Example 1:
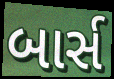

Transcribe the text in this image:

બાર્સ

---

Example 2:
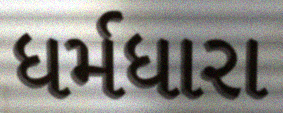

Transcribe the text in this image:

ધર્મધારા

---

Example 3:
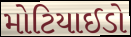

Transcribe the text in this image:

મોટિયાઈડો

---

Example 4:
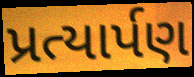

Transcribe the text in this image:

પ્રત્યાર્પણ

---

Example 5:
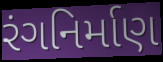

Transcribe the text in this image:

રંગનિર્માણ